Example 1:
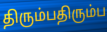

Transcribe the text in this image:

திரும்பதிரும்ப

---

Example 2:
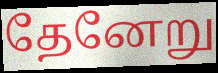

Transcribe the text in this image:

தேனேறு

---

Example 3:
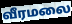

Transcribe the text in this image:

வீரமலை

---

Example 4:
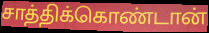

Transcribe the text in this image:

சாத்திக்கொண்டான்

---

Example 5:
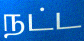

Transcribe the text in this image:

நட்ட